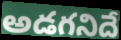
అడగనిదే